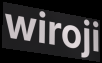
wiroji